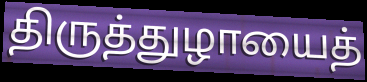
திருத்துழாயைத்